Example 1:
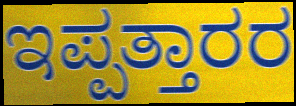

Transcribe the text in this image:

ಇಪ್ಪತ್ತಾರರ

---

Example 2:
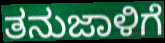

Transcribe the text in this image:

ತನುಜಾಳಿಗೆ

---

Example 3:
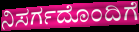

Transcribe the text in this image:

ನಿಸರ್ಗದೊಂದಿಗೆ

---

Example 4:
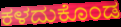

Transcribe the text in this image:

ಕಳದುಕೊಂಡ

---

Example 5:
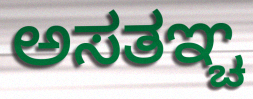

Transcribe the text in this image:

ಅಸತಞ್ಚ